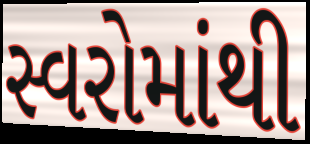
સ્વરોમાંથી